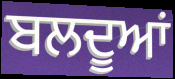
ਬਲਦੂਆਂ